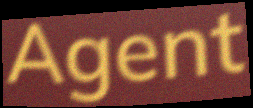
Agent